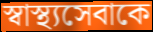
স্বাস্থ্যসেবাকে